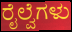
ರೈಲ್ವೆಗಳು